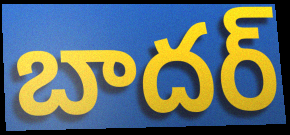
బాదర్